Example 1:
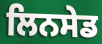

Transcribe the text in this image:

ਲਿਨਸੇਡ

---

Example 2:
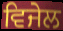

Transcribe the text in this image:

ਵਿਜੇਲ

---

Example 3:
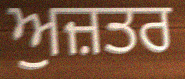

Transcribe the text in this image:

ਅੁਜ਼ਤਰ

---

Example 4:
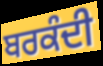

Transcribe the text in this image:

ਬਰਕੰਦੀ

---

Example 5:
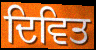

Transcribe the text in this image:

ਦਿਵਿਤ